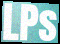
LPs